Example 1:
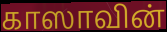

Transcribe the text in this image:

காஸாவின்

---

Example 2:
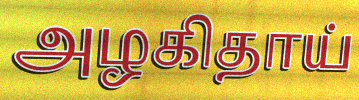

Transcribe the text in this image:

அழகிதாய்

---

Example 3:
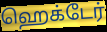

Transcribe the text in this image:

ஹெக்டேர்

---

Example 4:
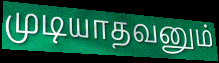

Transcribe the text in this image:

முடியாதவனும்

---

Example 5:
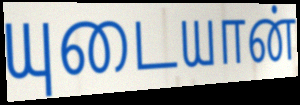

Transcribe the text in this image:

யுடையான்